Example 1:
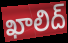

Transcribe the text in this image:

ఖాలిద్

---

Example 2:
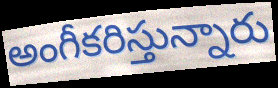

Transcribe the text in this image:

అంగీకరిస్తున్నారు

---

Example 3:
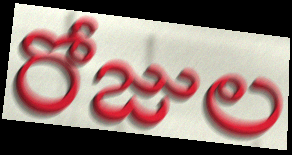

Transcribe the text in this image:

రోజుల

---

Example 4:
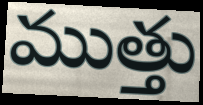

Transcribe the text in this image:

ముత్తు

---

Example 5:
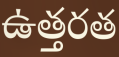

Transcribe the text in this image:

ఉత్తరత